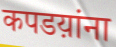
कपडय़ांना